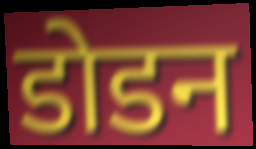
डोडन